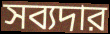
সব্যদার